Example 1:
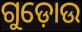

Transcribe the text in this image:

ଗୁଡ଼ୋଉ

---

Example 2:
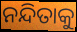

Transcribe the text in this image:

ନନ୍ଦିତାକୁ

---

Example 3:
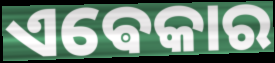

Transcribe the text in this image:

ଏଵେକାର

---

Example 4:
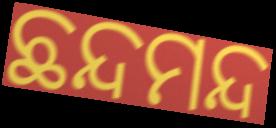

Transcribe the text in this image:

ଛନ୍ଦମନ୍ଦ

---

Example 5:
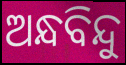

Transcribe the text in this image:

ଅନ୍ଧବିନ୍ଦୁ